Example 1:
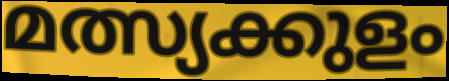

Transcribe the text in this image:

മത്സ്യക്കുളം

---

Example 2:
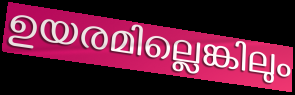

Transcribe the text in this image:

ഉയരമില്ലെങ്കിലും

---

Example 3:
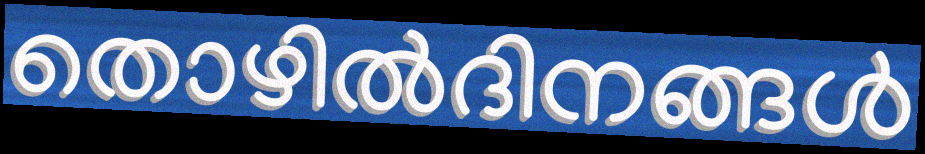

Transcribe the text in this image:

തൊഴിൽദിനങ്ങൾ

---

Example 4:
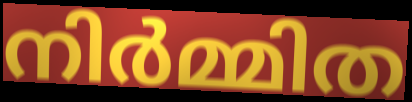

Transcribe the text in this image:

നിർമ്മിത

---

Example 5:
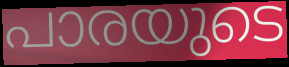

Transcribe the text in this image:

പാരയുടെ